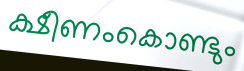
ക്ഷീണംകൊണ്ടും